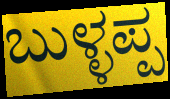
ಬುಳ್ಳಪ್ಪ